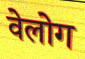
वेलोग